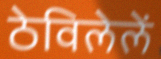
ठेविलेलें